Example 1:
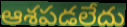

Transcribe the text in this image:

ఆశపడలేదు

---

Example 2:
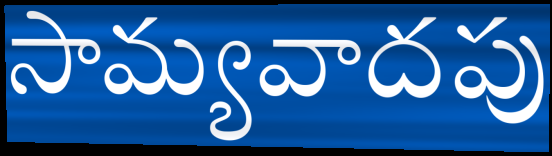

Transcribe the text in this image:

సామ్యవాదపు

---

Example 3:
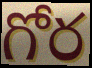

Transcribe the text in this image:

గోర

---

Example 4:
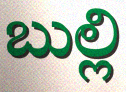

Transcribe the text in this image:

బుల్లి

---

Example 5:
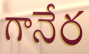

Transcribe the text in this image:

గానేర